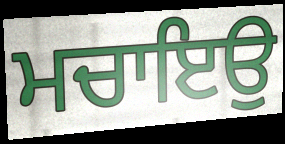
ਮਚਾਇਉ